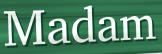
Madam